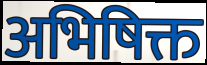
अभिषिक्त